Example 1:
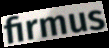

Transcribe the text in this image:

firmus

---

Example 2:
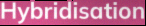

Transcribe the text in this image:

Hybridisation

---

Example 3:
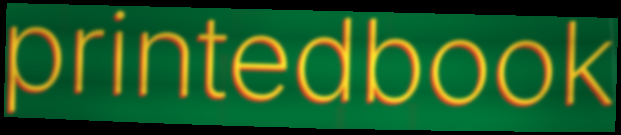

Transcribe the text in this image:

printedbook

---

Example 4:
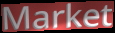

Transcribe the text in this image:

Market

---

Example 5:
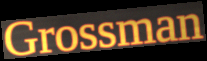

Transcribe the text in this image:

Grossman